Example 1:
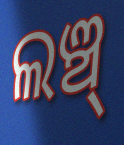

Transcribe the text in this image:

ଲଞ୍ଚ୍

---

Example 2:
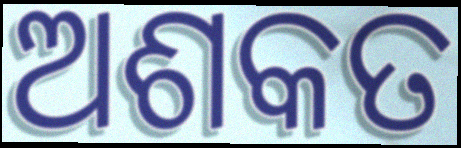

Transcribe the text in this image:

ଅଶକତ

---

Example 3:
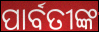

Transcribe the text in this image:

ପାର୍ବତୀଙ୍କ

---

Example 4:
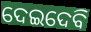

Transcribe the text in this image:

ଦେଇଦେବି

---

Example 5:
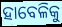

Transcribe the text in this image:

ହାବେଳିକୁ